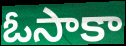
ఓసాకా